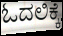
ಓದಲಿಕ್ಕೆ